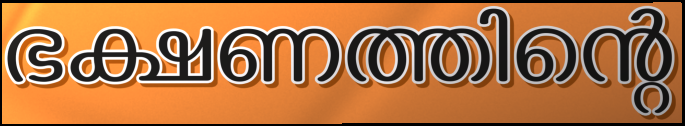
ഭക്ഷണത്തിന്റെ